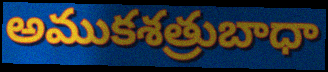
అముకశత్రుబాధా